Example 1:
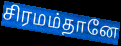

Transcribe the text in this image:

சிரமம்தானே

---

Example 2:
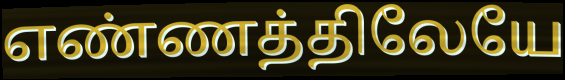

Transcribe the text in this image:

எண்ணத்திலேயே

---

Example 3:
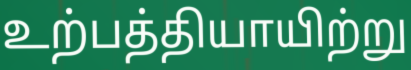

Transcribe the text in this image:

உற்பத்தியாயிற்று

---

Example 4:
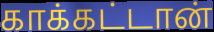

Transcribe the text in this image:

காக்கட்டான்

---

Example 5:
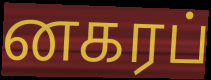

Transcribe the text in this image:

னகரப்